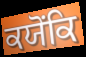
ਕਯੋਂਕਿ